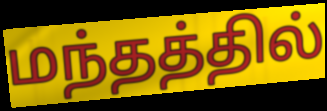
மந்தத்தில்